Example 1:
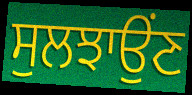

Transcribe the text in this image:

ਸੁਲਝਾਉਂਣ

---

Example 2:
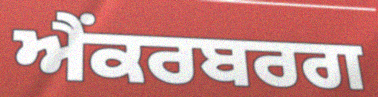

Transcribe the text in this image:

ਐਂਕਰਬਰਗ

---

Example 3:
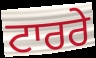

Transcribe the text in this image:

ਟਾਰਰੇ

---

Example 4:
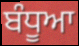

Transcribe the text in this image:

ਬੰਧੂਆ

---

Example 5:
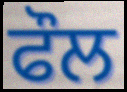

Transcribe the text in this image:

ਫੌਲ